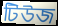
টিউজ